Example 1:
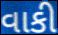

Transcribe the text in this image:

વાકી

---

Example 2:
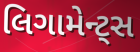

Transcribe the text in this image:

લિગામેન્ટ્સ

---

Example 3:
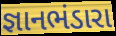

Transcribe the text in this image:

જ્ઞાનભંડારા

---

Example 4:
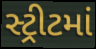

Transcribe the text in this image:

સ્ટ્રીટમાં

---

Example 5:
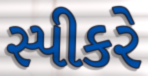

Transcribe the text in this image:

સ્પીકરે